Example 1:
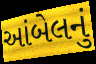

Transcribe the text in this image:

આંબેલનું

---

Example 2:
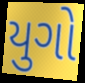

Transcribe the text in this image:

યુગો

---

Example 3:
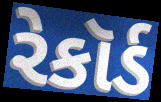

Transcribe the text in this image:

રેકૉર્ડ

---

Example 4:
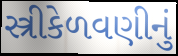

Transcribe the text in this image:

સ્ત્રીકેળવણીનું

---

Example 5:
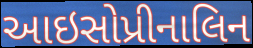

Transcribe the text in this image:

આઇસોપ્રીનાલિન